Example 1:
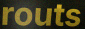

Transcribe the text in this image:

routs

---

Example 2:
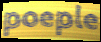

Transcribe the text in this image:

poeple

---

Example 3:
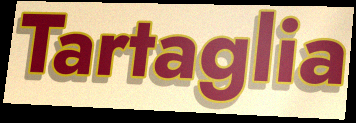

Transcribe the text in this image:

Tartaglia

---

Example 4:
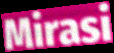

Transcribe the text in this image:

Mirasi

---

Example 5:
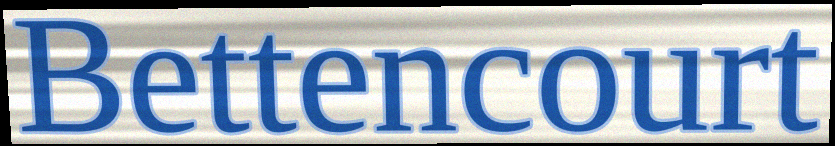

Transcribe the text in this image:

Bettencourt